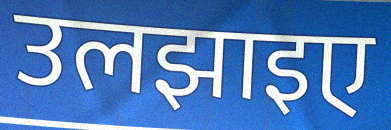
उलझाइए